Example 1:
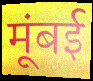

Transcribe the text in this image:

मूंबई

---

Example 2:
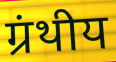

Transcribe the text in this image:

ग्रंथीय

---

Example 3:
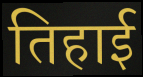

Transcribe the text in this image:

तिहाई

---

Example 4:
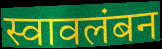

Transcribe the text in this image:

स्वावलंबन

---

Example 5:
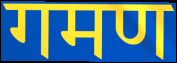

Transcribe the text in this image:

गमण